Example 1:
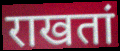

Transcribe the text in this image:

राखतां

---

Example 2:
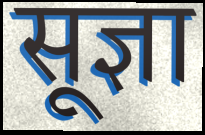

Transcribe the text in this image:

सूज्ञा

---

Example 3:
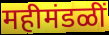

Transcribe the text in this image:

महीमंडळीं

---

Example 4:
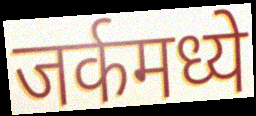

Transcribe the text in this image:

जर्कमध्ये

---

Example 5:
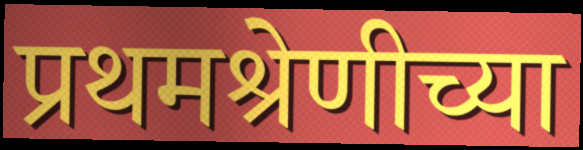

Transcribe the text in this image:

प्रथमश्रेणीच्या